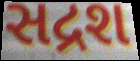
સદ્રશ